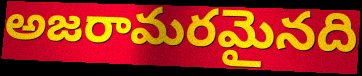
అజరామరమైనది